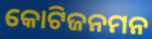
କୋଟିଜନମନ